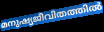
മനുഷ്യജീവിതത്തിൽ